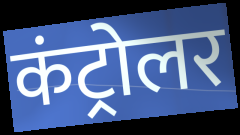
कंट्रोलर